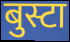
बुस्टा